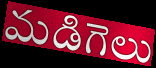
మడిగెలు